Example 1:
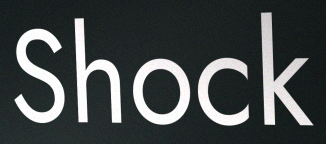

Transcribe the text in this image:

Shock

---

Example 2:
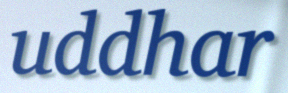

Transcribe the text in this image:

uddhar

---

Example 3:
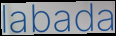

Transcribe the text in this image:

labada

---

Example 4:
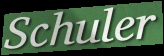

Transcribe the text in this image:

Schuler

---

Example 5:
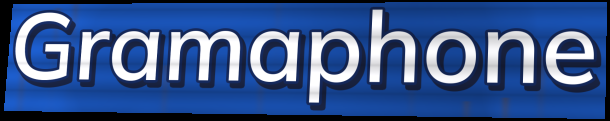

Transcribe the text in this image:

Gramaphone